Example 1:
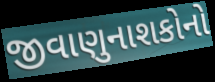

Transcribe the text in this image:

જીવાણુનાશકોનો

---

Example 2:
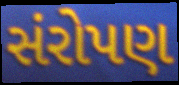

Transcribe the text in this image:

સંરોપણ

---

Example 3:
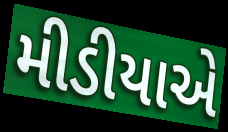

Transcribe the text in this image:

મીડીયાએ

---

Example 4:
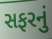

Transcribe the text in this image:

સફરનું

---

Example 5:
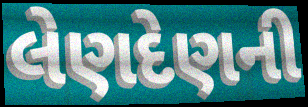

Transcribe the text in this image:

લેણદેણની